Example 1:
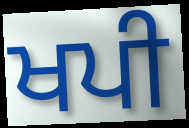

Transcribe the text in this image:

ਖਪੀ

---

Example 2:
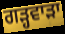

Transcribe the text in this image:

ਗੜ੍ਹਵਾੜਾ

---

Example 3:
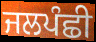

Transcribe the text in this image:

ਜਲਪੰਛੀ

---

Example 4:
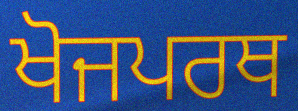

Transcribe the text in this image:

ਖੋਜਪਰਥ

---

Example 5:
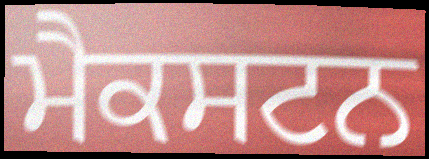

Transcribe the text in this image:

ਮੈਕਸਟਨ